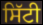
ਸਿੱਟੀ